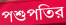
পশুপতির